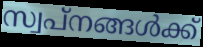
സ്വപ്നങ്ങൾക്ക്